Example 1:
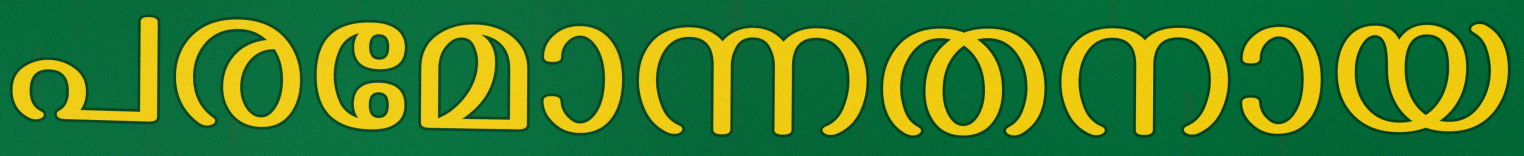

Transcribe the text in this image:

പരമോന്നതനായ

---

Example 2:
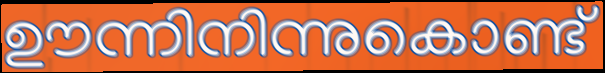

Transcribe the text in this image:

ഊന്നിനിന്നുകൊണ്ട്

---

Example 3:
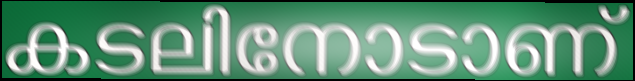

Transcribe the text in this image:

കടലിനോടാണ്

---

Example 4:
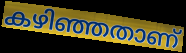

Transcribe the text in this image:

കഴിഞ്ഞതാണ്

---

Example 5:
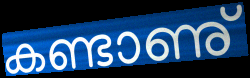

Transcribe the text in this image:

കണ്ടാണു്